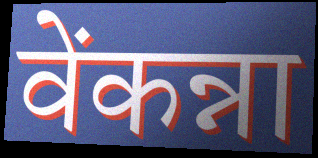
वेंकन्ना